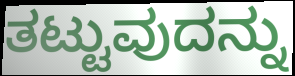
ತಟ್ಟುವುದನ್ನು